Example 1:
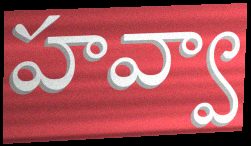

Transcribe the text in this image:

హవ్వా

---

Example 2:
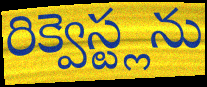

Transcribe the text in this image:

రిక్వెస్ట్లను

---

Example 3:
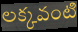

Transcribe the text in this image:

లక్కవంటి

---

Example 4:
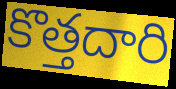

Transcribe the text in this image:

కొత్తదారి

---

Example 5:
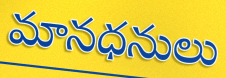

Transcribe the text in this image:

మానధనులు